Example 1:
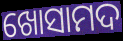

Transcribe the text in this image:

ଖୋସାମଦ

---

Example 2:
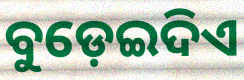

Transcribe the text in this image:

ବୁଡ଼େଇଦିଏ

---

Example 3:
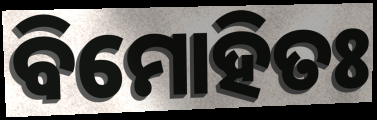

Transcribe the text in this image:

ବିମୋହିତଃ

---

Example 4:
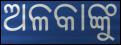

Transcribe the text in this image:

ଅଳକାଙ୍କୁ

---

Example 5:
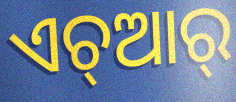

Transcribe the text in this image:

ଏଚ୍ଆର୍